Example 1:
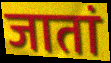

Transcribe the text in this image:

जातां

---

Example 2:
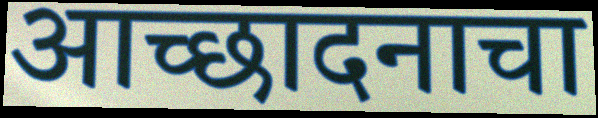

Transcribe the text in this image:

आच्छादनाचा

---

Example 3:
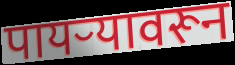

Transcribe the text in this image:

पायऱ्यावरून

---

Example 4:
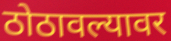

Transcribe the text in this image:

ठोठावल्यावर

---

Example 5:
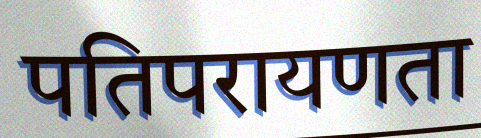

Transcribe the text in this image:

पतिपरायणता